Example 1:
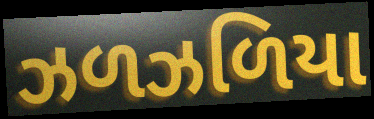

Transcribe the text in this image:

ઝળઝળિયા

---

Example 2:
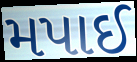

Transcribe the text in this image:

મપાઈ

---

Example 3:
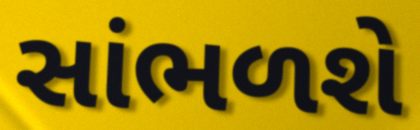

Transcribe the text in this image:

સાંભળશે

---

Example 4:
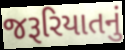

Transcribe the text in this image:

જરૂરિયાતનું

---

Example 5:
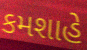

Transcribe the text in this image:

કમશાહે